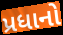
પ્રધાનો